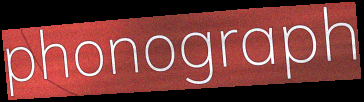
phonograph